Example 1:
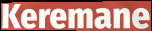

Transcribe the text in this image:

Keremane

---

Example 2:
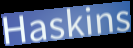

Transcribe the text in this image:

Haskins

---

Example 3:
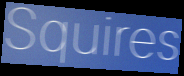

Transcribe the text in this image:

Squires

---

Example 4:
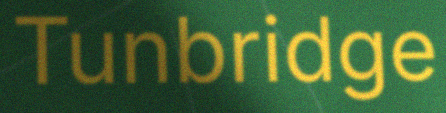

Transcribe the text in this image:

Tunbridge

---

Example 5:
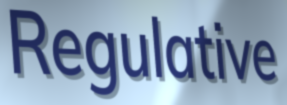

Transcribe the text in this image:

Regulative